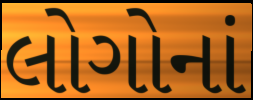
લોગોનાં